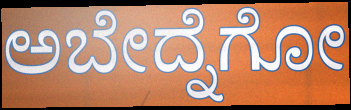
ಅಬೇದ್ನೆಗೋ